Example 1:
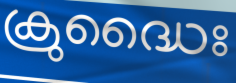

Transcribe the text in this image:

ക്രുദ്ധൈഃ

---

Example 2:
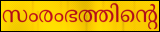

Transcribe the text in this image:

സംരംഭത്തിന്റെ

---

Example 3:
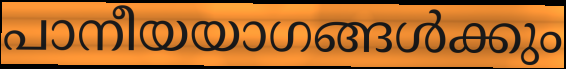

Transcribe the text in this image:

പാനീയയാഗങ്ങൾക്കും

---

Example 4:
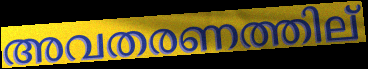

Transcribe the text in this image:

അവതരണത്തില്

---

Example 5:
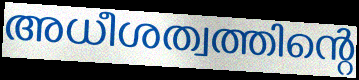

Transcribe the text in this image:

അധീശത്വത്തിന്റെ